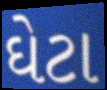
ઘેટા